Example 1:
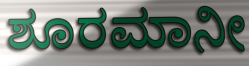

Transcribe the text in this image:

ಶೂರಮಾನೀ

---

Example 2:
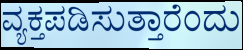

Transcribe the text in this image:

ವ್ಯಕ್ತಪಡಿಸುತ್ತಾರೆಂದು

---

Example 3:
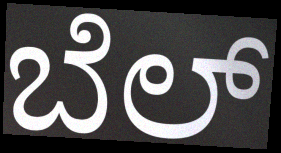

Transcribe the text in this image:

ಬೆಲ್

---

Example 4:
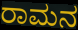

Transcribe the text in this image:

ರಾಮನ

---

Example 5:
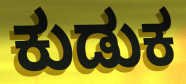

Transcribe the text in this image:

ಕುಡುಕ